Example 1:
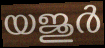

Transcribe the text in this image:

യജുർ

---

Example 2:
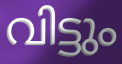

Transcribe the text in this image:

വിട്ടും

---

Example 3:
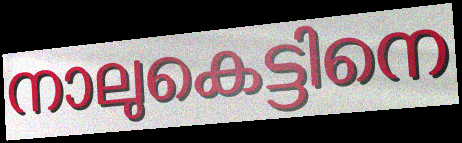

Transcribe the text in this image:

നാലുകെട്ടിനെ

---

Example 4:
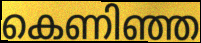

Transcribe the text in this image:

കെണിഞ്ഞ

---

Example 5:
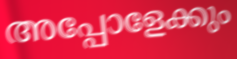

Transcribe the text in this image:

അപ്പോളേക്കും